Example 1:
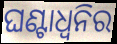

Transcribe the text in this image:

ଘଣ୍ଟାଧ୍ୱନିର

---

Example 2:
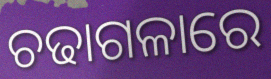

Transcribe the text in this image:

ଚଢାଗଳାରେ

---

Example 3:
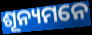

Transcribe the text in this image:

ଶୂନ୍ୟମନେ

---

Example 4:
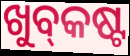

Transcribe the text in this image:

ଖୁବ୍‌କଷ୍ଟ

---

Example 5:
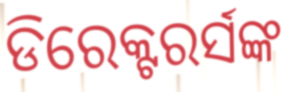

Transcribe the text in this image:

ଡିରେକ୍ଟରର୍ସଙ୍କ